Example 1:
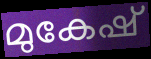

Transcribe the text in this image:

മുകേഷ്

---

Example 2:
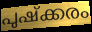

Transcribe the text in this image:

പുഷ്ക്കരം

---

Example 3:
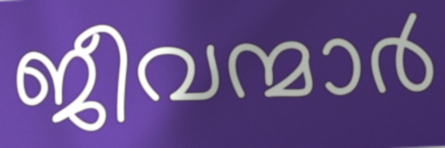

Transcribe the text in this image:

ജീവന്മാർ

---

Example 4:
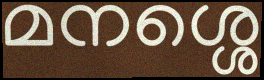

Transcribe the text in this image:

മനശ്ശെ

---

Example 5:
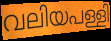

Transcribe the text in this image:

വലിയപള്ളി